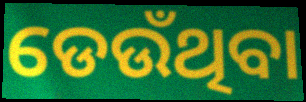
ଡେଉଁଥିବା